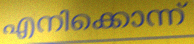
എനിക്കൊന്ന്